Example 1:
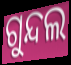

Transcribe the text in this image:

ଗୁନ୍ଦଲ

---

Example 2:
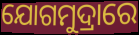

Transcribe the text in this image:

ଯୋଗମୁଦ୍ରାରେ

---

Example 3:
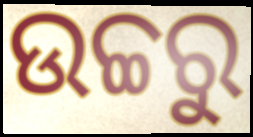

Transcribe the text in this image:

ଉଚ୍ଚରୁ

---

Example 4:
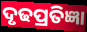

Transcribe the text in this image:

ଦୃଢପ୍ରତିଜ୍ଞା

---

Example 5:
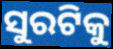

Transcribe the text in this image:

ସୁରଟିକୁ